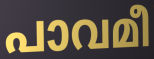
പാവമീ